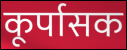
कूर्पासक